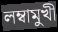
লম্বামুখী